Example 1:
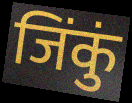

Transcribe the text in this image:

जिंकुं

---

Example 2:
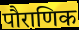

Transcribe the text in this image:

पौराणिक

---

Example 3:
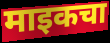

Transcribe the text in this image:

माइकचा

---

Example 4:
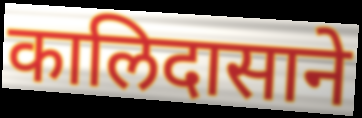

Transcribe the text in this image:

कालिदासाने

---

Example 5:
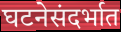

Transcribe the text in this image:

घटनेसंदर्भात